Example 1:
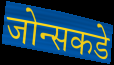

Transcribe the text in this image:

जोन्सकडे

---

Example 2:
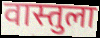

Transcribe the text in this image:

वास्तुला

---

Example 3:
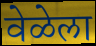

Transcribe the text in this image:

वेळेला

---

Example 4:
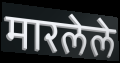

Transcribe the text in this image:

मारलेले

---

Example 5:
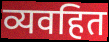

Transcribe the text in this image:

व्यवहित